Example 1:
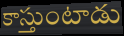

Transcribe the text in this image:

కాస్తుంటాడు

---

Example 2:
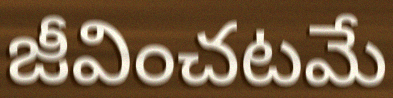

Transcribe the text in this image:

జీవించటమే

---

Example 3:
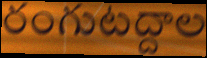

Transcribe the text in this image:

రంగుటద్దాల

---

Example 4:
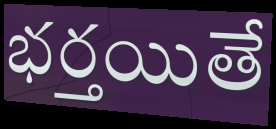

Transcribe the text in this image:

భర్తయితే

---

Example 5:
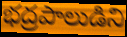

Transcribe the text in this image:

భద్రపాలుడిని